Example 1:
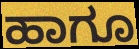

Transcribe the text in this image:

ಹಾಗೂ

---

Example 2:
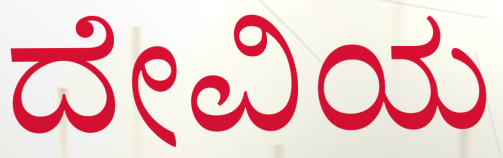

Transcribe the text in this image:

ದೇವಿಯ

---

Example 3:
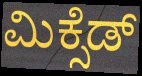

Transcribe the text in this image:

ಮಿಕ್ಸೆಡ್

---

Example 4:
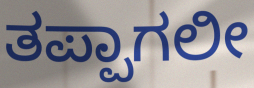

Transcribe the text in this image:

ತಪ್ಪಾಗಲೀ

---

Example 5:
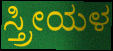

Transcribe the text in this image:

ಸ್ತ್ರೀಯಳ